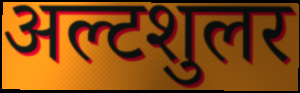
अल्टशुलर